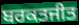
ਬਰਕਤਜੀਤ